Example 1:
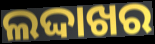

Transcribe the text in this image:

ଲଦ୍ଦାଖର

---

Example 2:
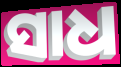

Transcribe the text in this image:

ସାଧ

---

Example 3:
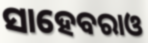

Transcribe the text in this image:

ସାହେବରାଓ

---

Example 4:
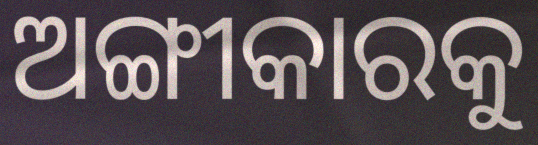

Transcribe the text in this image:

ଅଙ୍ଗୀକାରକୁ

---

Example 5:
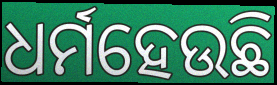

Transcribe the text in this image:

ଧର୍ମହେଉଛି